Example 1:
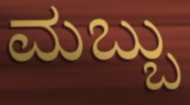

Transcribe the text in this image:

ಮಬ್ಬು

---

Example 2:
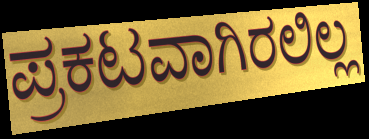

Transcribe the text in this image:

ಪ್ರಕಟವಾಗಿರಲಿಲ್ಲ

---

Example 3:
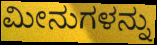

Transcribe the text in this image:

ಮೀನುಗಳನ್ನು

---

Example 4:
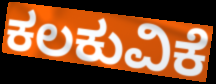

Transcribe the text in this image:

ಕಲಕುವಿಕೆ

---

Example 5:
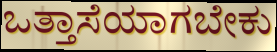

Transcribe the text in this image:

ಒತ್ತಾಸೆಯಾಗಬೇಕು